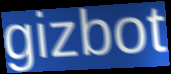
gizbot